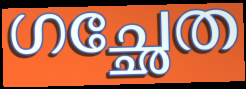
ഗച്ഛേത